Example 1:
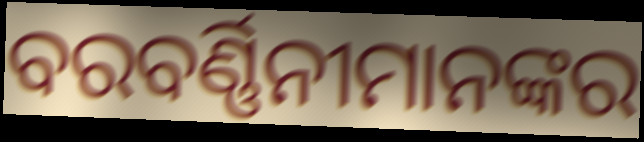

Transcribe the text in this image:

ବରବର୍ଣ୍ଣିନୀମାନଙ୍କର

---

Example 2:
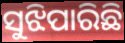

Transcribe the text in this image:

ସୁଝିପାରିଛି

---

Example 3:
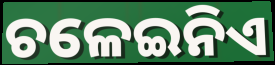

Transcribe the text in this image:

ଚଳେଇନିଏ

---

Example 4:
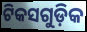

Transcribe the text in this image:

ଟିକସଗୁଡ଼ିକ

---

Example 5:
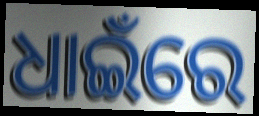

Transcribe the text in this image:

ଧାଇଁରେ